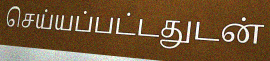
செய்யப்பட்டதுடன்